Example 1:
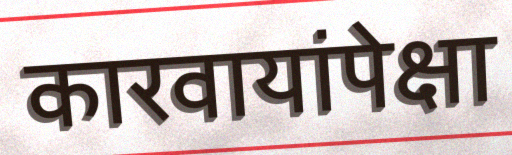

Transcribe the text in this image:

कारवायांपेक्षा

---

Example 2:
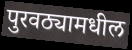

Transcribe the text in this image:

पुरवठ्यामधील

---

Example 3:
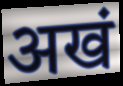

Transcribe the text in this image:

अखं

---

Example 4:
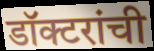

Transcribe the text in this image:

डॉक्टरांची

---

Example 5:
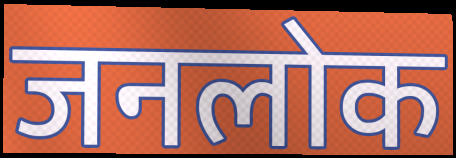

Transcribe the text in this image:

जनलोक